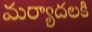
మర్యాదలకి